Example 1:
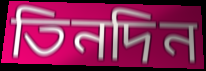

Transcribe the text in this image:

তিনদিন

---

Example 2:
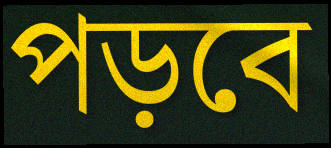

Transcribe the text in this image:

পড়বে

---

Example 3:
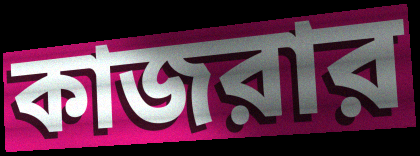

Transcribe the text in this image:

কাজরার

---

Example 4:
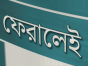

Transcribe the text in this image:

ফেরালেই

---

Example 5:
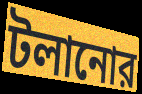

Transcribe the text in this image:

টলানোর